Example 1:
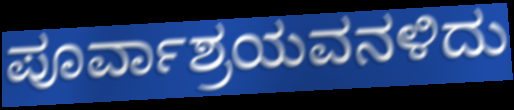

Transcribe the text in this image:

ಪೂರ್ವಾಶ್ರಯವನಳಿದು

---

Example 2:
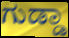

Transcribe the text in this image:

ಗುಡ್ಡಾ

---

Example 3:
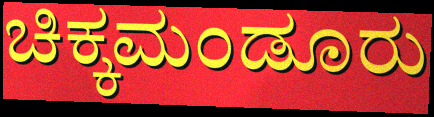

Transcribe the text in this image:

ಚಿಕ್ಕಮಂಡೂರು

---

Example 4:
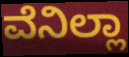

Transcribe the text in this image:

ವೆನಿಲ್ಲಾ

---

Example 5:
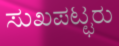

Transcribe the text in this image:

ಸುಖಪಟ್ಟರು